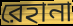
রেহানা